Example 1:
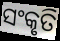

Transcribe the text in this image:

ସଂକୃତି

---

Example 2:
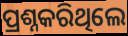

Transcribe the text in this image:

ପ୍ରଶ୍ନକରିଥିଲେ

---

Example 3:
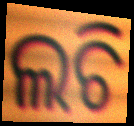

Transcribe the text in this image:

ଲଚି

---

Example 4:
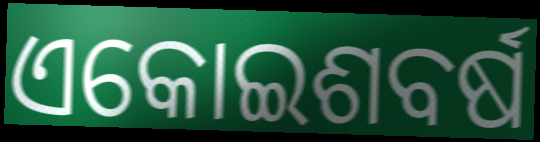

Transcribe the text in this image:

ଏକୋଇଶବର୍ଷ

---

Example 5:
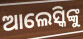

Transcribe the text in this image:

ଆଲେସ୍କିଙ୍କୁ